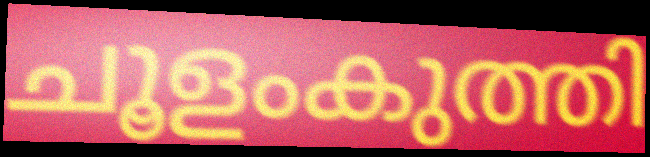
ചൂളംകുത്തി